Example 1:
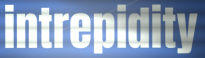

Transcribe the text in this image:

intrepidity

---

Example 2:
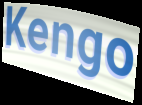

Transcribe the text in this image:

Kengo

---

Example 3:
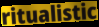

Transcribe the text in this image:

ritualistic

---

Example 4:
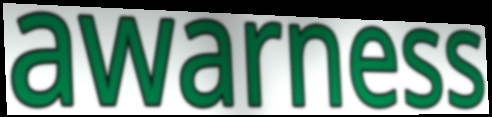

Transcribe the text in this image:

awarness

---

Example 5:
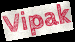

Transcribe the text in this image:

Vipak